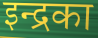
इन्द्रका